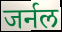
जर्नल